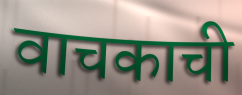
वाचकाची